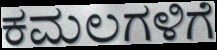
ಕಮಲಗಳಿಗೆ